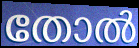
തോൽ